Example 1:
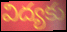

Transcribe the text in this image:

విద్యకు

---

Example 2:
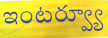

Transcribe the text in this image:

ఇంటర్వ్యూ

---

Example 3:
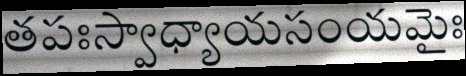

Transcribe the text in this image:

తపఃస్వాధ్యాయసంయమైః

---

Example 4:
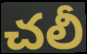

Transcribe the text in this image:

చలీ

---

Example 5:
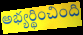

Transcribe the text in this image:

అభ్యర్థించింది